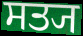
ਸਤ੍ਯ